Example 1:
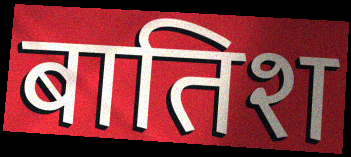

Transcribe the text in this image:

बातिश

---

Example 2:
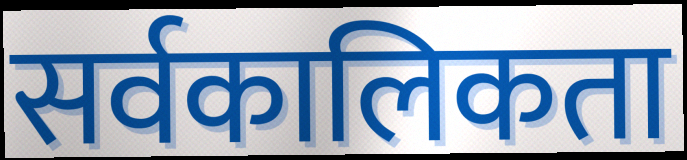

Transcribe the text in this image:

सर्वकालिकता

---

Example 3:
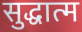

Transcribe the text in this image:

सुद्धात्म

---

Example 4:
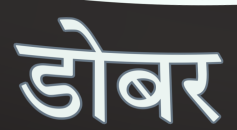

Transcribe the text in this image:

डोबर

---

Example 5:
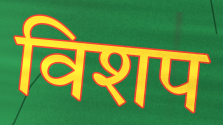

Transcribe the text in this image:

विशप